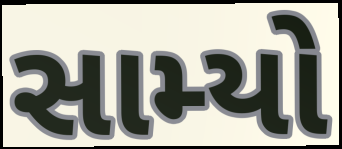
સામ્યો